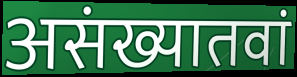
असंख्यातवां